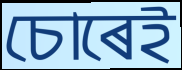
চোৰেই